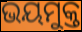
ଭୟମୁକ୍ତ